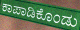
ಕಾಪಾಡಿಕೊಂಡು